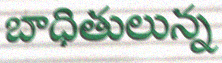
బాధితులున్న